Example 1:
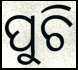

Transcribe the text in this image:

ପୁଚି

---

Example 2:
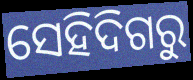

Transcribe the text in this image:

ସେହିଦିଗରୁ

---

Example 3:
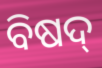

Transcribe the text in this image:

ବିଷଦ୍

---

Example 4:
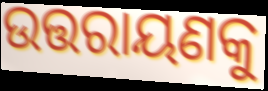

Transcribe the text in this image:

ଉତ୍ତରାୟଣକୁ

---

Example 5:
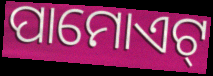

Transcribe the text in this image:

ପାମୋଏଟ୍